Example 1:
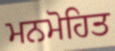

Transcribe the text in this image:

ਮਨਮੋਹਿਤ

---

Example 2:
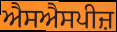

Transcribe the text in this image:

ਐਸਐਸਪੀਜ਼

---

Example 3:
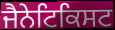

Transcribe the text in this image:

ਜੈਨੇਟਿਕਿਸਟ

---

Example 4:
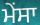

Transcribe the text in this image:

ਮੇਂਸਾ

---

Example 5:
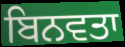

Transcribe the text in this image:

ਬਿਨਵਤਾ